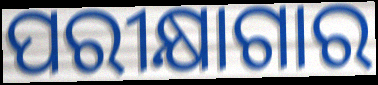
ପରୀକ୍ଷାଗାର